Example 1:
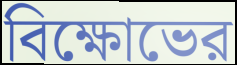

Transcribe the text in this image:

বিক্ষোভের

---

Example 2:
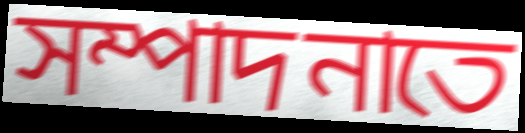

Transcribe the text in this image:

সম্পাদনাতে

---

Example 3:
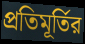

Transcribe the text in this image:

প্রতিমূর্তির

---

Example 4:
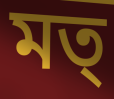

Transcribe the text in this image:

মত্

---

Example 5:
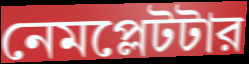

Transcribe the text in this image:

নেমপ্লেটটার